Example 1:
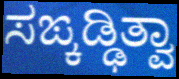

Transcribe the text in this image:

ಸಙ್ಕಡ್ಢಿತ್ವಾ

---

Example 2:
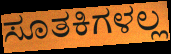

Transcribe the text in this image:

ಸೂತಕಿಗಳಲ್ಲ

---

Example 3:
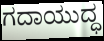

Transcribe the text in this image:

ಗದಾಯುದ್ಧ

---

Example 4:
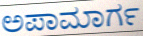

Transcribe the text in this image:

ಅಪಾಮಾರ್ಗ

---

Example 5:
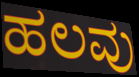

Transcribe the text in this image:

ಹಲವು